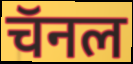
चॅनल